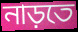
নাড়তে